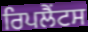
ਰਿਪਲੈਂਟਸ